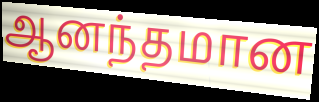
ஆனந்தமான